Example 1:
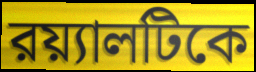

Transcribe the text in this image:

রয়্যালটিকে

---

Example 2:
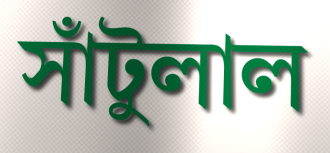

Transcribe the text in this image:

সাঁটুলাল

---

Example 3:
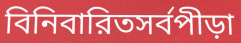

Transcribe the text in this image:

বিনিবারিতসর্বপীড়া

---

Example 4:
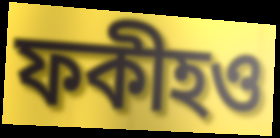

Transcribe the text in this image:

ফকীহও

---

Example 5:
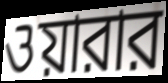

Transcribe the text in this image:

ওয়ারার